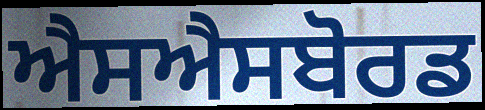
ਐਸਐਸਬੋਰਡ